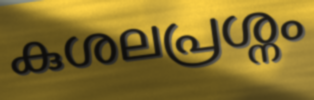
കുശലപ്രശ്നം